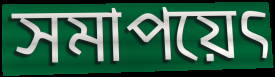
সমাপয়েৎ